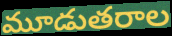
మూడుతరాల